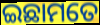
ଇଛାମତେ